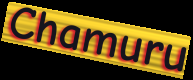
Chamuru